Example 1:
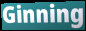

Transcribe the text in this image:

Ginning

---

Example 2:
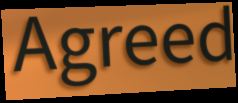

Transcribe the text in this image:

Agreed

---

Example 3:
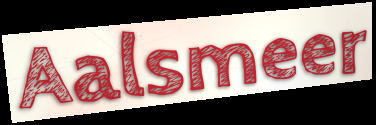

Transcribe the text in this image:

Aalsmeer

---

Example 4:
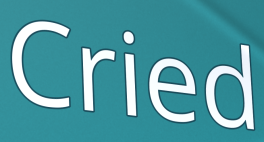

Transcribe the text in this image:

Cried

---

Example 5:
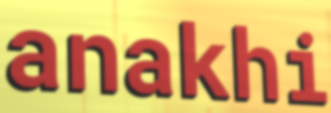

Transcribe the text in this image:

anakhi